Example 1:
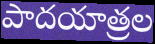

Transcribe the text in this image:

పాదయాత్రల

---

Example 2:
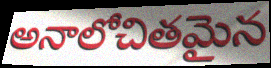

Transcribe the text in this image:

అనాలోచితమైన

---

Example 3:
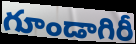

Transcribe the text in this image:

గూండాగిరీ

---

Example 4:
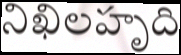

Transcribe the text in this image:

నిఖిలహృది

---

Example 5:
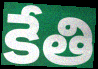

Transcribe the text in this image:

కేతి